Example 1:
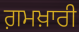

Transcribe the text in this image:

ਗ਼ਮਖ਼ਾਰੀ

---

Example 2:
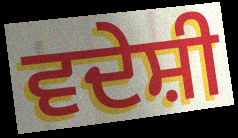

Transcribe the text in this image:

ਵਦੇਸ਼ੀ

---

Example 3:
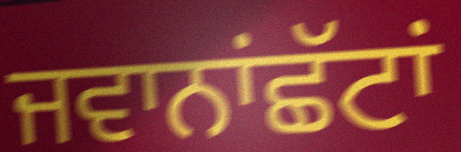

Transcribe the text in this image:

ਜਵਾਨਾਂਛੱਟਾਂ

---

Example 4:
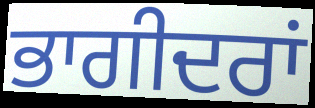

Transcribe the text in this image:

ਭਾਗੀਦਰਾਂ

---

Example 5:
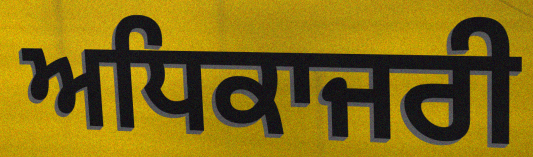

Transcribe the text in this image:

ਅਧਿਕਾਜਰੀ